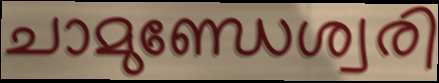
ചാമുണ്ഡേശ്വരി